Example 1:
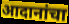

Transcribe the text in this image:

आदानांचा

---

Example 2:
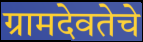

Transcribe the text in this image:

ग्रामदेवतेचे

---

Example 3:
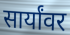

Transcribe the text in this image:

सार्यांवर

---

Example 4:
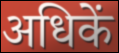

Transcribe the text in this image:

अधिकें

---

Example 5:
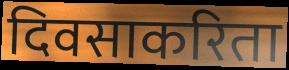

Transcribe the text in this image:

दिवसाकरिता